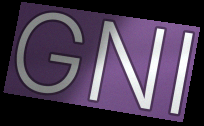
GNI